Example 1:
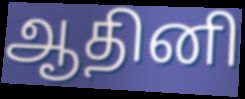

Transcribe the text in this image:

ஆதினி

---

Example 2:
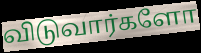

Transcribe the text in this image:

விடுவார்களோ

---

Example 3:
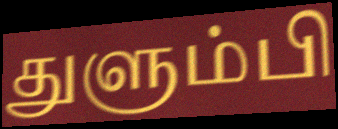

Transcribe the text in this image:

துளும்பி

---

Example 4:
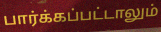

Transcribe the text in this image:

பார்க்கப்பட்டாலும்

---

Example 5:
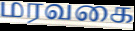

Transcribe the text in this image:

மரவகை